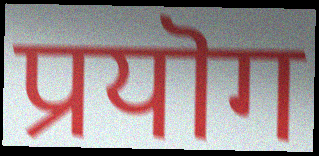
प्रयॊग